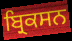
ਬ੍ਰਿਕਸਨ